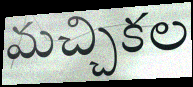
మచ్చికల